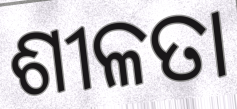
ଶୀଳତା